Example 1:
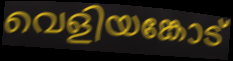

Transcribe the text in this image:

വെളിയങ്കോട്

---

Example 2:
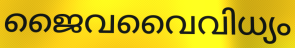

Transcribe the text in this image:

ജൈവവൈവിധ്യം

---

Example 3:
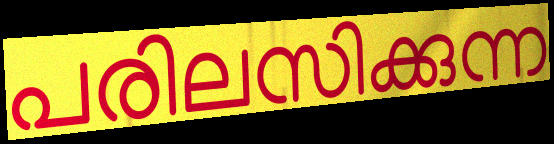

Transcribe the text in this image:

പരിലസിക്കുന്ന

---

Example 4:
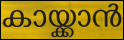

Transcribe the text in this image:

കായ്ക്കാൻ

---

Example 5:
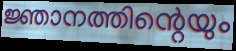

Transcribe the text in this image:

ജ്ഞാനത്തിന്റെയും